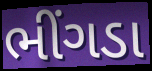
ભીંગડા